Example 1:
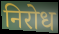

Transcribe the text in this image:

निरोध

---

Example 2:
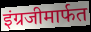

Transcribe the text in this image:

इंग्रजीमार्फत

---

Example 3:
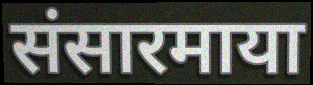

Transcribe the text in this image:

संसारमाया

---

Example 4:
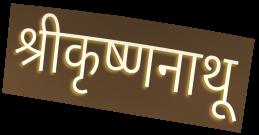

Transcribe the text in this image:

श्रीकृष्णनाथू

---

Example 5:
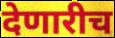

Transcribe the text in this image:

देणारीच